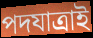
পদযাত্রাই